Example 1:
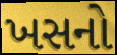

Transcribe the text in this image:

ખસનો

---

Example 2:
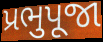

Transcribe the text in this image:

પ્રભુપૂજા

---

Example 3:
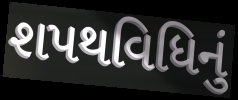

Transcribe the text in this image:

શપથવિધિનું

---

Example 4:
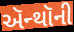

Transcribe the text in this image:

ઍન્થૉની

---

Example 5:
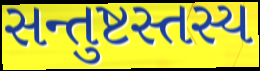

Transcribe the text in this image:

સન્તુષ્ટસ્તસ્ય